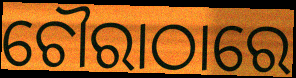
ଚୌରାଠାରେ